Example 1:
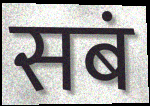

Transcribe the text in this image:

सबं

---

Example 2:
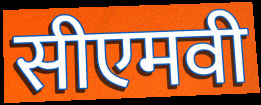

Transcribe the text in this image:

सीएमवी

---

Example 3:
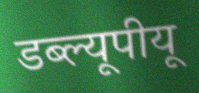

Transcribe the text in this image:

डब्ल्यूपीयू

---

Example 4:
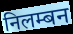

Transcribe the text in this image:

निलम्‍बन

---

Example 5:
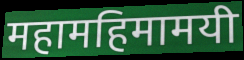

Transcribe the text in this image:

महामहिमामयी